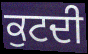
ਕੁਟਦੀ